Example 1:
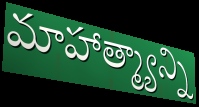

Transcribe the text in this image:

మాహాత్మ్యాన్ని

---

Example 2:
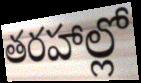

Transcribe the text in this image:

తరహాల్లో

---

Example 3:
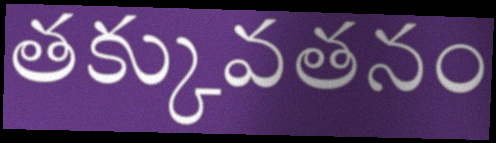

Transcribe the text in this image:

తక్కువతనం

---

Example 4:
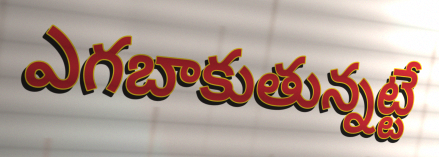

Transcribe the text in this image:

ఎగబాకుతున్నట్టే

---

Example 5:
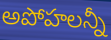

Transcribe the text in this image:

అపోహలన్నీ